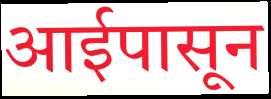
आईपासून